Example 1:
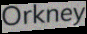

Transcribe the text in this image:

Orkney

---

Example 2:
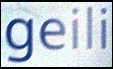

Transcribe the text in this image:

geili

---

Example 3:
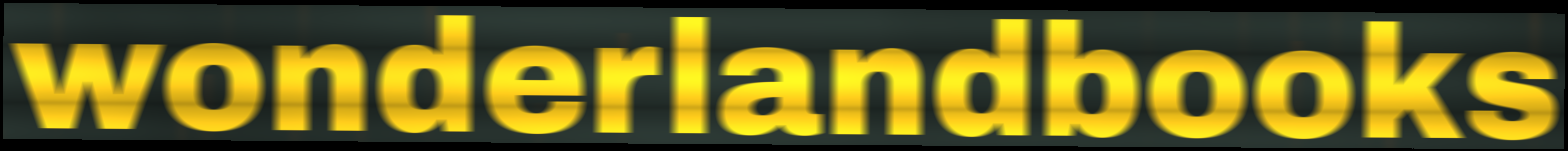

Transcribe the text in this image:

wonderlandbooks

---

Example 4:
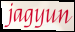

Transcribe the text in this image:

jagyun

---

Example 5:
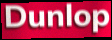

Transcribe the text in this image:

Dunlop